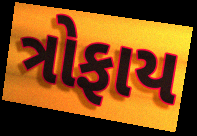
ત્રોફાય